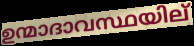
ഉന്മാദാവസ്ഥയില്